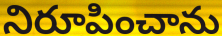
నిరూపించాను